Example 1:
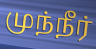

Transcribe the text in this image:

முந்நீர்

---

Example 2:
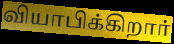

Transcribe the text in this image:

வியாபிக்கிறார்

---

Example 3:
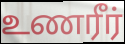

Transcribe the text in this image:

உணரீர்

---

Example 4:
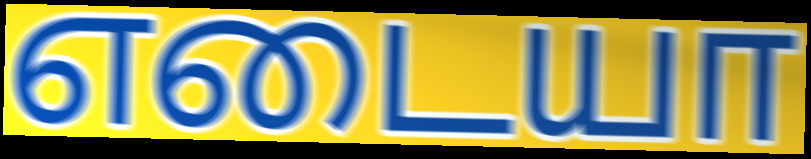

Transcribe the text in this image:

எடையா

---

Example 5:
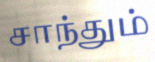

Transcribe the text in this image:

சாந்தும்